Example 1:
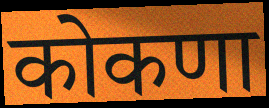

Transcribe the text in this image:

कोकणा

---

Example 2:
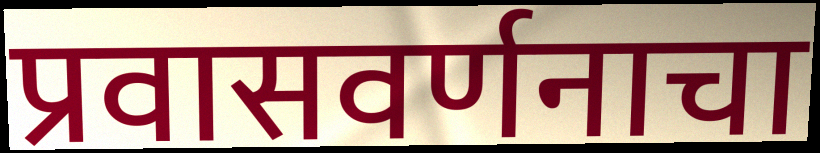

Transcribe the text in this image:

प्रवासवर्णनाचा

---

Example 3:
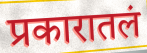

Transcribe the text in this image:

प्रकारातलं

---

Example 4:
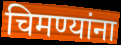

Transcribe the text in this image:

चिमण्यांना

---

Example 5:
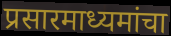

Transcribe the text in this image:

प्रसारमाध्यमांचा